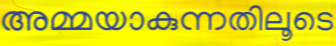
അമ്മയാകുന്നതിലൂടെ